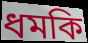
ধমকি